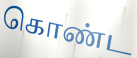
கொண்ட